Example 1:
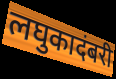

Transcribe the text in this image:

लघुकादंबरी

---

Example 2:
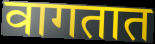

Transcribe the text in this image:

वागतात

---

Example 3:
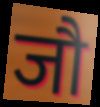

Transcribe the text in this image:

जौ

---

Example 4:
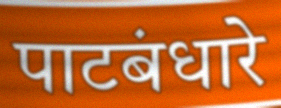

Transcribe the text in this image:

पाटबंधारे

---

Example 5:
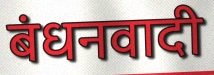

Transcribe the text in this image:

बंधनवादी